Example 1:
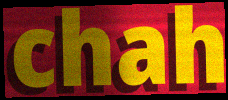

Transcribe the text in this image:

chah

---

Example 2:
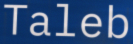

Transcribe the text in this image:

Taleb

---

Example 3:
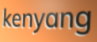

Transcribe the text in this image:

kenyang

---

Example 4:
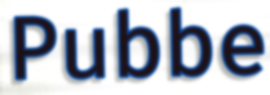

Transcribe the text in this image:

Pubbe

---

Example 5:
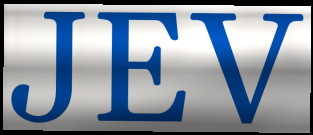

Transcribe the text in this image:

JEV